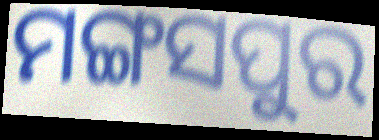
ମଙ୍ଗସପୁର